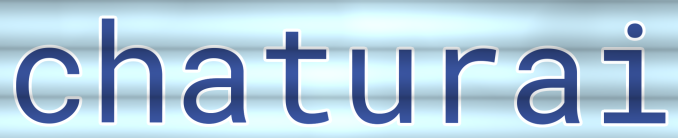
chaturai